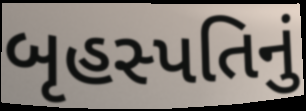
બૃહસ્પતિનું